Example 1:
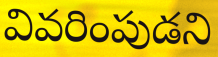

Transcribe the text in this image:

వివరింపుడని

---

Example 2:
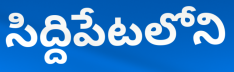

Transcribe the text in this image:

సిద్దిపేటలోని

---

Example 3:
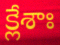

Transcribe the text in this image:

క్లేశాః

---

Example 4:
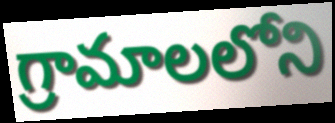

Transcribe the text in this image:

గ్రామాలలోని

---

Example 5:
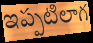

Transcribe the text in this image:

ఇప్పటిలాగ